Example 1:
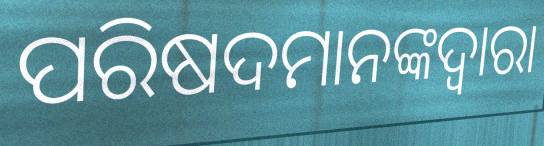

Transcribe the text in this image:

ପରିଷଦମାନଙ୍କଦ୍ୱାରା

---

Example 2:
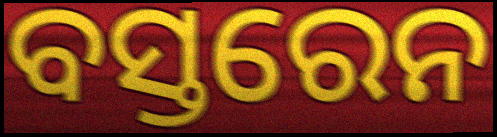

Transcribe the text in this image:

ବସ୍ତରେନ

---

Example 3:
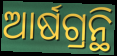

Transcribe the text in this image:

ଆର୍ଷଗ୍ରନ୍ଥି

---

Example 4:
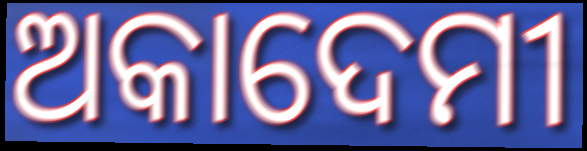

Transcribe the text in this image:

ଅକାଦେମୀ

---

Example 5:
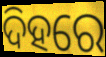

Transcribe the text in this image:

ଦିହରେ